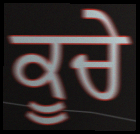
ਕੂਚੇ